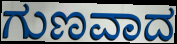
ಗುಣವಾದ